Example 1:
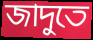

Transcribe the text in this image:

জাদুতে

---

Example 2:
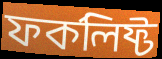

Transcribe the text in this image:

ফর্কলিফ্ট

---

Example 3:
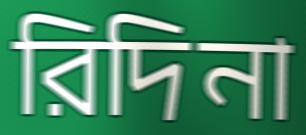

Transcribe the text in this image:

রিদিনা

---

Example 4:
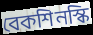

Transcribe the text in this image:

বেকশিনস্কি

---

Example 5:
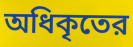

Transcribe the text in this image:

অধিকৃতের